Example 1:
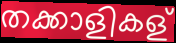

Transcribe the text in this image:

തക്കാളികള്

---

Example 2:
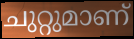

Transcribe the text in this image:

ചുറ്റുമാണ്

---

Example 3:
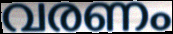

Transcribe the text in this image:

വരണം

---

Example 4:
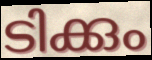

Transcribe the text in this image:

ടിക്കും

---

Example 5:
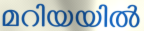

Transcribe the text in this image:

മറിയയിൽ